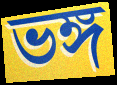
ভঙ্গ